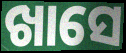
ଖାସେ